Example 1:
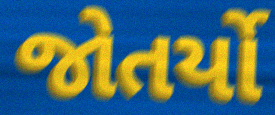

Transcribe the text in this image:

જોતર્યો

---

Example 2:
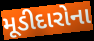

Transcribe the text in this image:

મૂડીદારોના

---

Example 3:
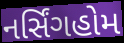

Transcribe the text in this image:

નર્સિંગહોમ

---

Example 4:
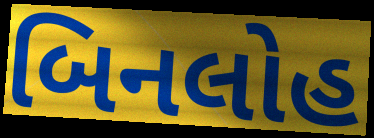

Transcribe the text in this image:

બિનલોહ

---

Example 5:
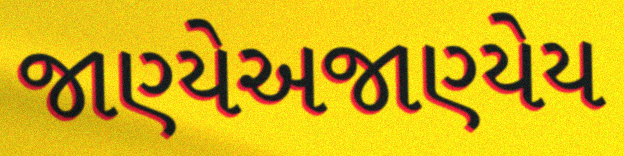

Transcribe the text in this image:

જાણ્યેઅજાણ્યેય